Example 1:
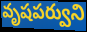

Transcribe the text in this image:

వృషపర్వుని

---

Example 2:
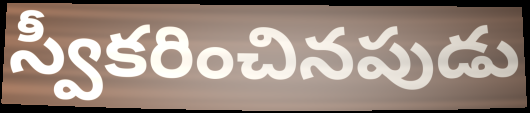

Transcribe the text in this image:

స్వీకరించినపుడు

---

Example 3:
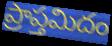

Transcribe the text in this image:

ప్రాప్తమిదం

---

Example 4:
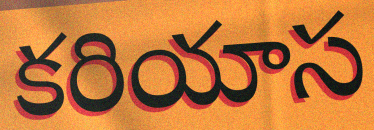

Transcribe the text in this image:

కరియాస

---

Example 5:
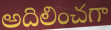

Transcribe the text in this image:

అదిలించగా